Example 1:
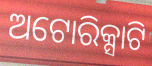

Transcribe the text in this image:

ଅଟୋରିକ୍ସାଟି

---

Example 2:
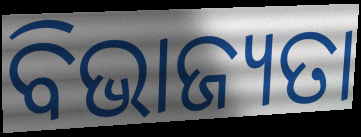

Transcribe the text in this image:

ବିଭାଜ୍ୟତା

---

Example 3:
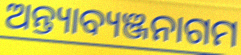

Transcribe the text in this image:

ଅନ୍ତ୍ୟାବ୍ୟଞ୍ଜନାଗମ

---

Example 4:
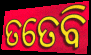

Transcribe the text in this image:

ତତେବି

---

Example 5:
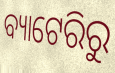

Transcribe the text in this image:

ବ୍ୟାଟେରିରୁ